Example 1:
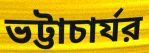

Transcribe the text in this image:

ভট্টাচার্যর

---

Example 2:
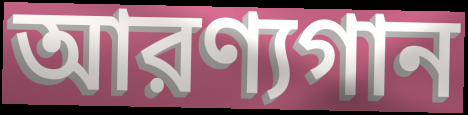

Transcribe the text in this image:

আরণ্যগান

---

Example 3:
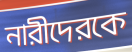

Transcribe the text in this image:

নারীদেরকে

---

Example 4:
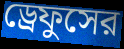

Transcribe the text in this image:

ড্রেফুসের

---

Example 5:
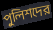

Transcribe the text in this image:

পুলিশদের